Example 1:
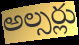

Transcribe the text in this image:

అల్సర్లు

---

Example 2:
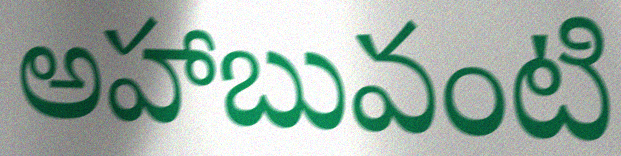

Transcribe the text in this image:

అహాబువంటి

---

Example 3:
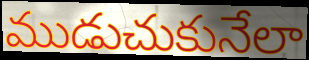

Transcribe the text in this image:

ముడుచుకునేలా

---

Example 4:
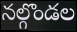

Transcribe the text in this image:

నల్గొండల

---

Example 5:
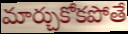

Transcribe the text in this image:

మార్చుకోకపోతే